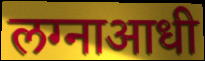
लग्नाआधी